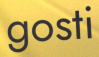
gosti